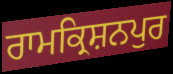
ਰਾਮਕ੍ਰਿਸ਼ਨਪੁਰ